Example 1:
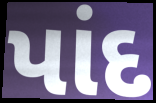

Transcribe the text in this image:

પાંદ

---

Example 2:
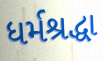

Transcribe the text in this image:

ધર્મશ્રદ્ધા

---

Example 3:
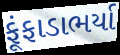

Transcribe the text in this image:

ફૂંફાડાભર્યા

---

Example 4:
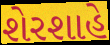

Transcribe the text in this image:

શેરશાહે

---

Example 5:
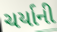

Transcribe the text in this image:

ચર્યાની